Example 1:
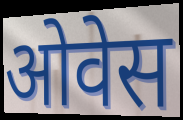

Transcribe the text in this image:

ओवेस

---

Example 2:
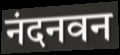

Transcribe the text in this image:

नंदनवन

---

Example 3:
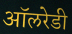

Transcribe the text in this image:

ऑलरेडी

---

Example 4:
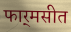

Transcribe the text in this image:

फार्मसीत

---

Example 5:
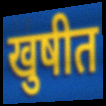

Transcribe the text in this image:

खुषीत